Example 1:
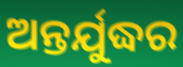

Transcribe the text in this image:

ଅନ୍ତର୍ଯୁଦ୍ଧର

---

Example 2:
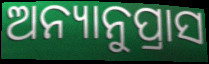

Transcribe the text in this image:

ଅନ୍ୟାନୁପ୍ରାସ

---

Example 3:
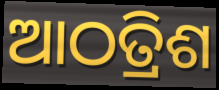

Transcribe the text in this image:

ଆଠତ୍ରିଶ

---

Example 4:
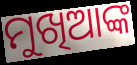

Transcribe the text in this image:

ମୁଖିଆଙ୍କ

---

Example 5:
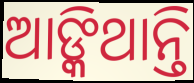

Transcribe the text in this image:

ଆଙ୍କିଥାନ୍ତି